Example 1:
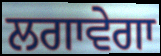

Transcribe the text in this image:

ਲਗਾਵੇਗਾ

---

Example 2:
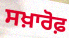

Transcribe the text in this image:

ਸਖ਼ਾਰੋਫ਼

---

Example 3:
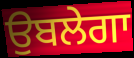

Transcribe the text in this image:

ਉਬਲੇਗਾ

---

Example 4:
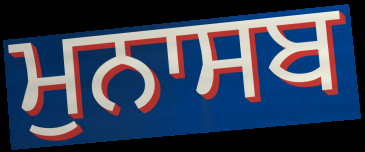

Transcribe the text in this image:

ਮੁਨਾਸਬ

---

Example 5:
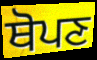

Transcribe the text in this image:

ਥੋਪਣ